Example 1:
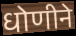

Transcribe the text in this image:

धोणीने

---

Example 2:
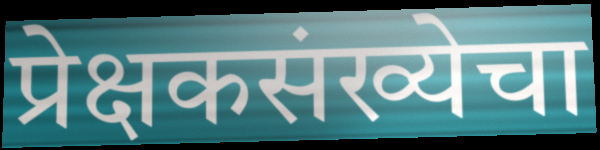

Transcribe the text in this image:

प्रेक्षकसंख्येचा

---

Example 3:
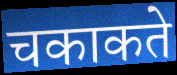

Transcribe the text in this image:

चकाकते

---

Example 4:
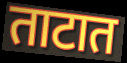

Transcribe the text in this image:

ताटात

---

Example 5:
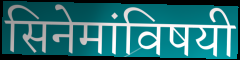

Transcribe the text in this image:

सिनेमांविषयी